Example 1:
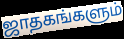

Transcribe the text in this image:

ஜாதகங்களும்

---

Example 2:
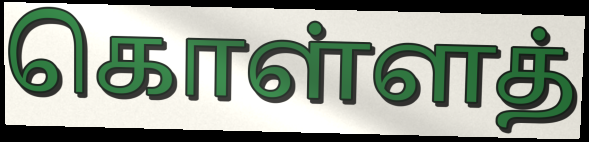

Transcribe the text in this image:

கொள்ளத்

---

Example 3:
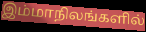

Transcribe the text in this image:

இம்மாநிலங்களில்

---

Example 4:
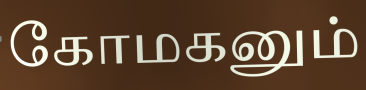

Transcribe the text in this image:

கோமகனும்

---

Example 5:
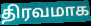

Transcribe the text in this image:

திரவமாக